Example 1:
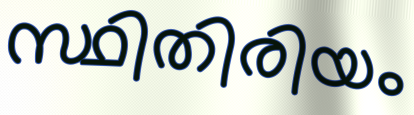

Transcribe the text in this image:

സ്ഥിതിരിയം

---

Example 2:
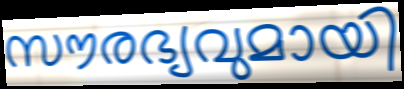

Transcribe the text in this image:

സൗരഭ്യവുമായി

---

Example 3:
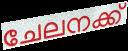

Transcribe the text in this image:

ചേലനക്ക്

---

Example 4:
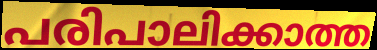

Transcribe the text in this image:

പരിപാലിക്കാത്ത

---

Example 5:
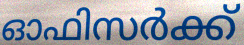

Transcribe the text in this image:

ഓഫിസർക്ക്